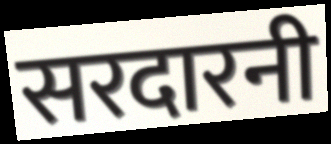
सरदारनी